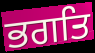
ਭਗਤਿ